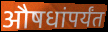
औषधांपर्यंत